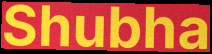
Shubha